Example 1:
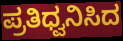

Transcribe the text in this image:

ಪ್ರತಿಧ್ವನಿಸಿದ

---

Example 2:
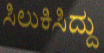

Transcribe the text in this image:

ಸಿಲುಕಿಸಿದ್ದು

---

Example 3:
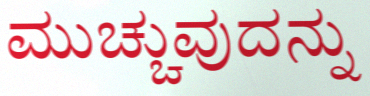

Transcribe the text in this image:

ಮುಚ್ಚುವುದನ್ನು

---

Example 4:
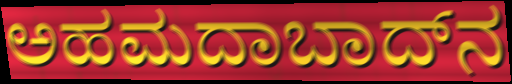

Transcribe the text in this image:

ಅಹಮದಾಬಾದ್‌ನ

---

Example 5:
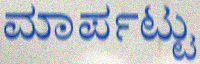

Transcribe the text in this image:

ಮಾರ್ಪಟ್ಟು